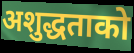
अशुद्धताको